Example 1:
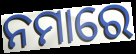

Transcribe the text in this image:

ନମାରେ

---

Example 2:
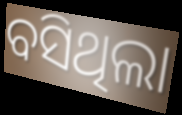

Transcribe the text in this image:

ବସିଥିଲା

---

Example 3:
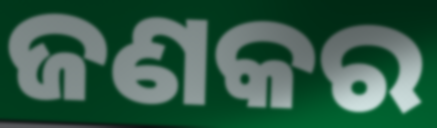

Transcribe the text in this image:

ଜଣକର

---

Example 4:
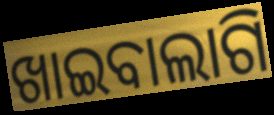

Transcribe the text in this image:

ଖାଇବାଲାଗି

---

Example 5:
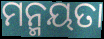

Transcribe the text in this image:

ମନ୍ମୟତା